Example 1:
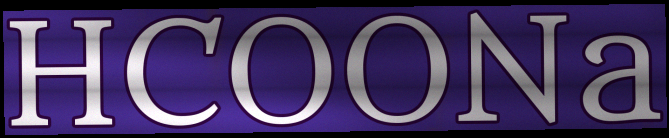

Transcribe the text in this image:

HCOONa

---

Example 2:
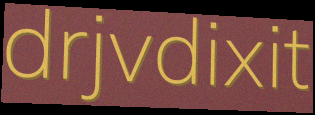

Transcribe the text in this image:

drjvdixit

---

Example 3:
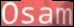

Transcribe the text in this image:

Osam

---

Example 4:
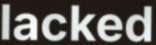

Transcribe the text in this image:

lacked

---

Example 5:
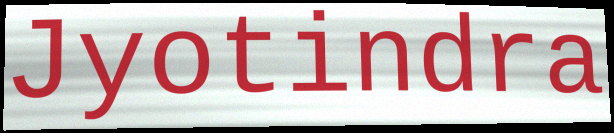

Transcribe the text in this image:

Jyotindra